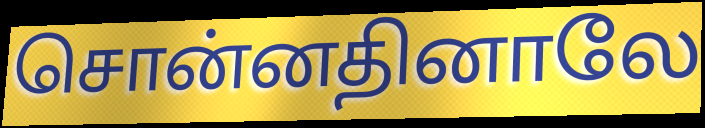
சொன்னதினாலே